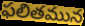
ఫలితమున